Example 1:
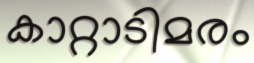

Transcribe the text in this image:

കാറ്റാടിമരം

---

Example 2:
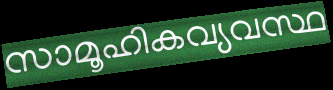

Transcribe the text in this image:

സാമൂഹികവ്യവസ്ഥ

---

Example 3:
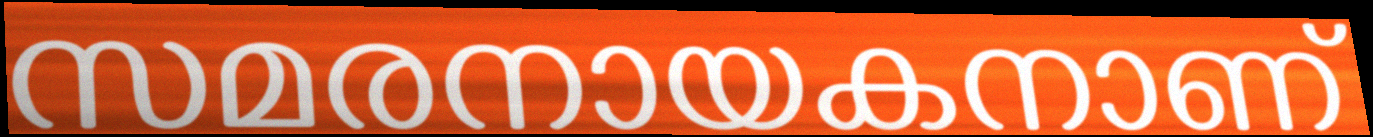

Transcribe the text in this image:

സമരനായകനാണ്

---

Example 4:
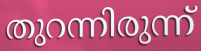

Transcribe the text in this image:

തുറന്നിരുന്ന്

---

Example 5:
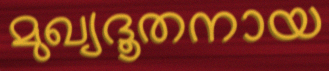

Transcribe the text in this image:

മുഖ്യദൂതനായ